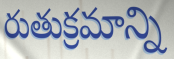
రుతుక్రమాన్ని